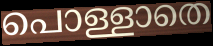
പൊള്ളാതെ